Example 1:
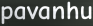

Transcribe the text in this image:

pavanhu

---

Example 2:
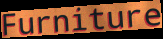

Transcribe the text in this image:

Furniture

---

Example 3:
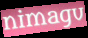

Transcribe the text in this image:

nimagu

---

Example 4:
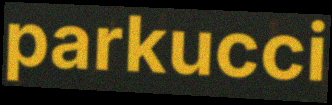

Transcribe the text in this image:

parkucci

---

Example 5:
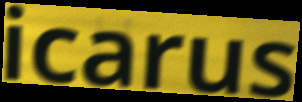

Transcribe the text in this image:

icarus